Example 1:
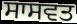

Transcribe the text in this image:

ਸਾਸਵਤ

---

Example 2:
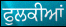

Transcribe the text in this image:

ਫੁਲਕੀਆਂ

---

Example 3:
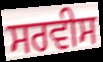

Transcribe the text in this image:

ਸਰਵੀਸ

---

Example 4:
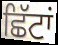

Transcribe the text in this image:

ਛਿੱਟਾਂ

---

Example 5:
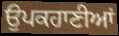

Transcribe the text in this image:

ਉਪਕਹਾਣੀਆਂ